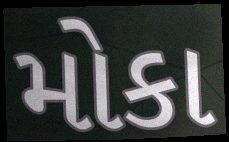
મોકા